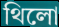
থিলো